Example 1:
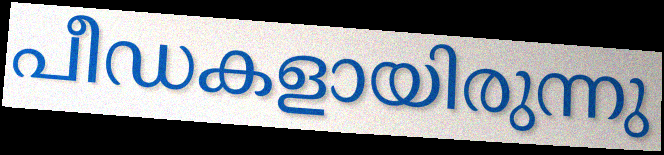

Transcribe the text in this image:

പീഡകളായിരുന്നു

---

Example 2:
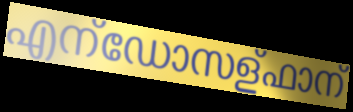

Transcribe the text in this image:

എന്ഡോസള്ഫാന്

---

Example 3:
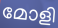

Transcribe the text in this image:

മോളി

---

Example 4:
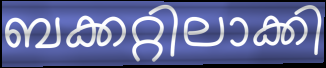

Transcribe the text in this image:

ബക്കറ്റിലാക്കി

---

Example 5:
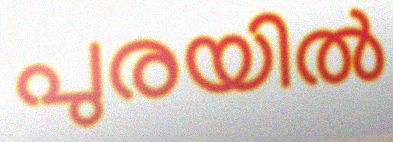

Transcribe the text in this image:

പുരയിൽ